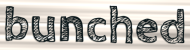
bunched